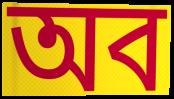
অব